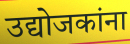
उद्योजकांना